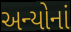
અન્યોનાં